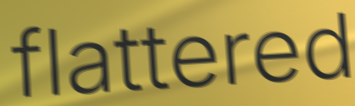
flattered